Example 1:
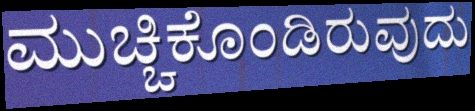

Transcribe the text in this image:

ಮುಚ್ಚಿಕೊಂಡಿರುವುದು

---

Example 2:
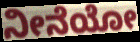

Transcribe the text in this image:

ನೀನೆಯೋ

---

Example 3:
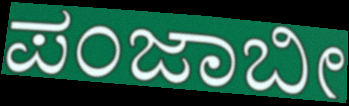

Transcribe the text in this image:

ಪಂಜಾಬೀ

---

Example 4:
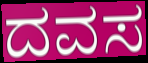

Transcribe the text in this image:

ದವಸ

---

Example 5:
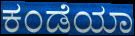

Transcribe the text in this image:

ಕಂಡೆಯಾ